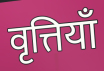
वृत्तियाँ